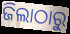
ଜିଲାଠାରୁ